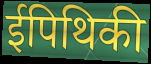
ईपिथिकी